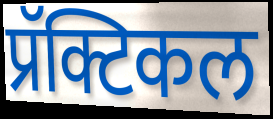
प्रॅक्टिकल